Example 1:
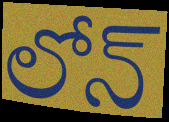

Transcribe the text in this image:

లోన్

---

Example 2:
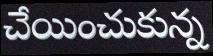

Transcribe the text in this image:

చేయించుకున్న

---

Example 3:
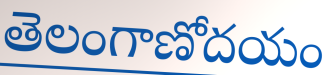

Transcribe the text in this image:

తెలంగాణోదయం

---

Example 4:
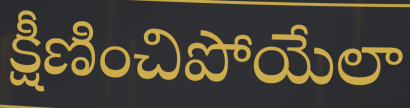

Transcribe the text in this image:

క్షీణించిపోయేలా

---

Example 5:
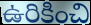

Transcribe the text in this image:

ఉరికించి